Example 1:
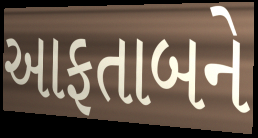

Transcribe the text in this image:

આફતાબને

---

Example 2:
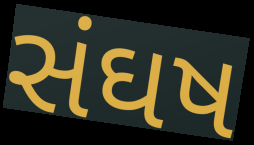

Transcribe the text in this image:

સંઘષ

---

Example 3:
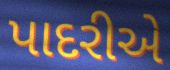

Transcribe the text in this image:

પાદરીએ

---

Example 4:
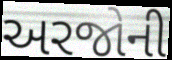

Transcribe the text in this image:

અરજોની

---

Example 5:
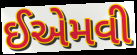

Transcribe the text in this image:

ઈએમવી